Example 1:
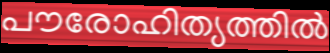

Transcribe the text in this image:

പൗരോഹിത്യത്തിൽ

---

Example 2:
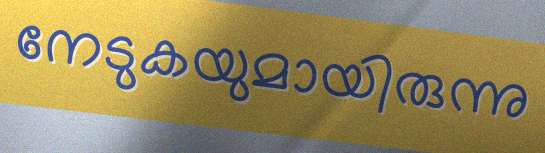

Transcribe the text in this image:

നേടുകയുമായിരുന്നു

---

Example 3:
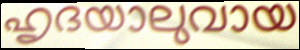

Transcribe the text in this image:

ഹൃദയാലുവായ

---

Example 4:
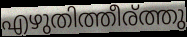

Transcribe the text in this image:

എഴുതിത്തീര്ത്തു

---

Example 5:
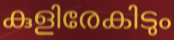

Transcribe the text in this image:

കുളിരേകിടും